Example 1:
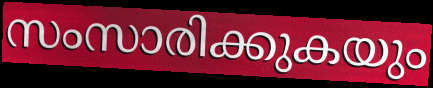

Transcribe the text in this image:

സംസാരിക്കുകയും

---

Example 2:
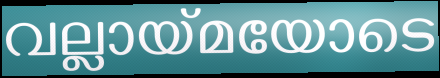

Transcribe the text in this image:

വല്ലായ്മയോടെ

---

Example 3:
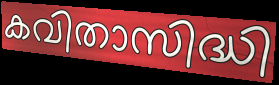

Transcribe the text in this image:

കവിതാസിദ്ധി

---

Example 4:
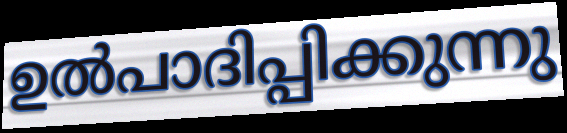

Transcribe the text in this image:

ഉൽപാദിപ്പിക്കുന്നു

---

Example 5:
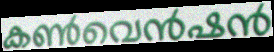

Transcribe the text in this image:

കൺവെൻഷൻ